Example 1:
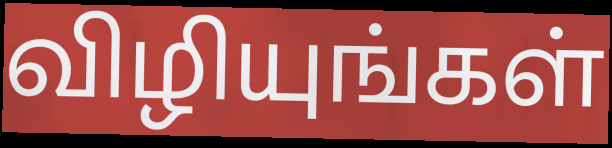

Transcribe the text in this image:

விழியுங்கள்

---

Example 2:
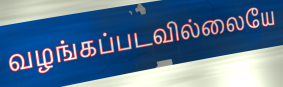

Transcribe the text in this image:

வழங்கப்படவில்லையே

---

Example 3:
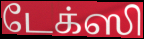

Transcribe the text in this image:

டேக்ஸி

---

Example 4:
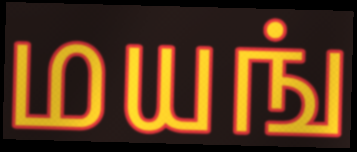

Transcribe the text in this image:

மயங்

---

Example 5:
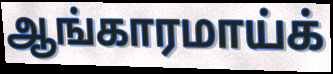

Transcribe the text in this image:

ஆங்காரமாய்க்